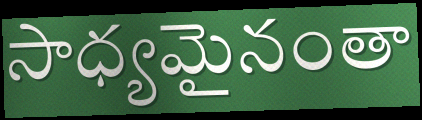
సాధ్యమైనంతా